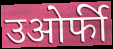
उओर्फी